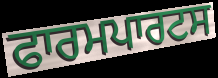
ਫਾਰਮਪਾਰਟਸ